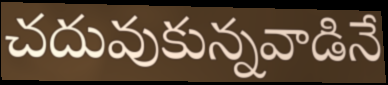
చదువుకున్నవాడినే